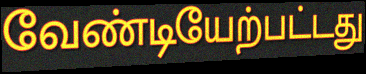
வேண்டியேற்பட்டது